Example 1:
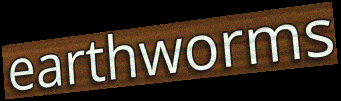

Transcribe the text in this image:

earthworms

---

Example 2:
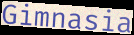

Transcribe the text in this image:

Gimnasia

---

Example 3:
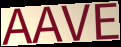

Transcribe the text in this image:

AAVE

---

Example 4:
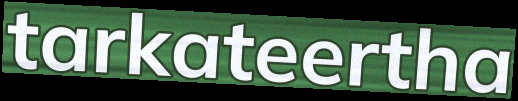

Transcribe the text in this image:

tarkateertha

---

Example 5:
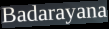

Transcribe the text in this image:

Badarayana